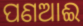
ପଣଆଈ